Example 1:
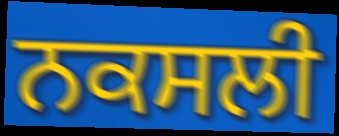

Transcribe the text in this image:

ਨਕਸਲੀ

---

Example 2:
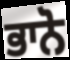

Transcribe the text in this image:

ਭਾਨੋ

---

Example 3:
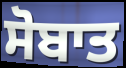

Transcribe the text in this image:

ਸੋਬਾਤ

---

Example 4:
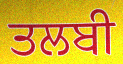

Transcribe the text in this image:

ਤਲਬੀ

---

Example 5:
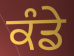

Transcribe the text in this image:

ਕੰਡੇ